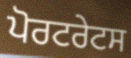
ਪੋਰਟਰੇਟਸ